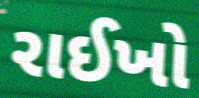
રાઈખો